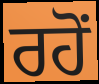
ਰਹੋਂ